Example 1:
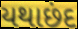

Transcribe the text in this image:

યથાછંદ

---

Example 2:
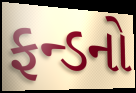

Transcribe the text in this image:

ફન્ડનો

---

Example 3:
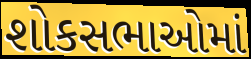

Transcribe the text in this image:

શોકસભાઓમાં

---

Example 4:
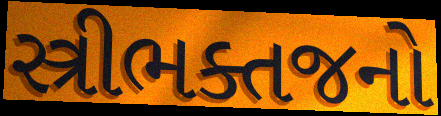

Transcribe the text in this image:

સ્ત્રીભક્તજનો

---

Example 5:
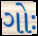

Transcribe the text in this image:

ગોઃ